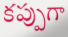
కప్పుగా